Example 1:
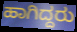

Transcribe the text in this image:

ಹಾಗಿದ್ದರು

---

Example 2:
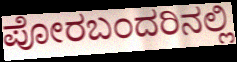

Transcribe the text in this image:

ಪೋರಬಂದರಿನಲ್ಲಿ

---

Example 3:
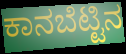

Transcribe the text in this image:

ಕಾನಬೆಟ್ಟಿನ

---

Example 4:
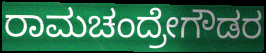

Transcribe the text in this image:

ರಾಮಚಂದ್ರೇಗೌಡರ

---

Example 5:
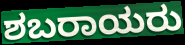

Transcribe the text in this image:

ಶಬರಾಯರು